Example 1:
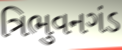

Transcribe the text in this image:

ત્રિભુવનગંડ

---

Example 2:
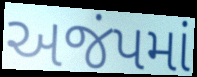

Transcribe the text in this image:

અજંપમાં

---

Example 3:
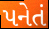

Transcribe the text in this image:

પનેતં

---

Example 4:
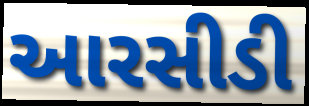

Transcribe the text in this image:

આરસીડી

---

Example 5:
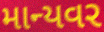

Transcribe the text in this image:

માન્યવર